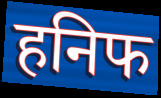
हनिफ